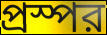
প্রস্পর